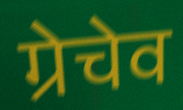
ग्रेचेव